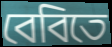
বেবিতে